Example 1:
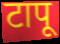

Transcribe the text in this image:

टापू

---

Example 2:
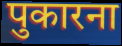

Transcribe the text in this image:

पुकारना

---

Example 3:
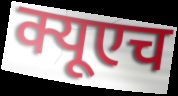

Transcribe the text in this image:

क्यूएच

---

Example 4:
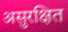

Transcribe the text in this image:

असुरक्षित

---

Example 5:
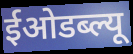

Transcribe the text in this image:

ईओडब्ल्यू